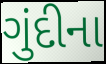
ગુંદીના